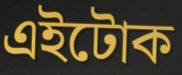
এইটোক